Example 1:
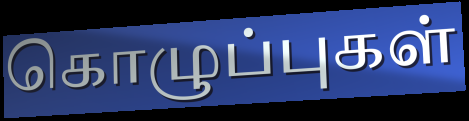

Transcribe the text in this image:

கொழுப்புகள்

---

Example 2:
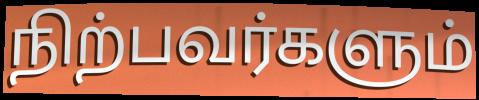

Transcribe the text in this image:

நிற்பவர்களும்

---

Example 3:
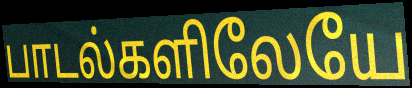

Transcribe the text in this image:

பாடல்களிலேயே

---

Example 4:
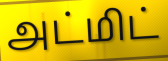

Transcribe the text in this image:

அட்மிட்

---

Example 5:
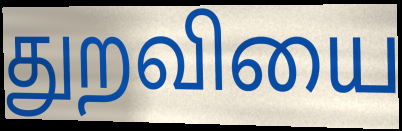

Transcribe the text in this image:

துறவியை